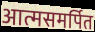
आत्मसमर्पित